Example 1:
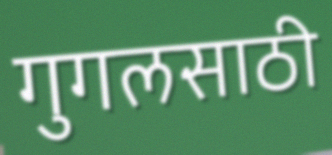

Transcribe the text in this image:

गुगलसाठी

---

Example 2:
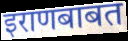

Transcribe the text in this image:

इराणबाबत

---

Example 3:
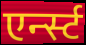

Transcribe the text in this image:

एर्न्स्ट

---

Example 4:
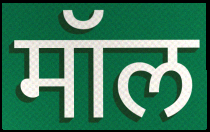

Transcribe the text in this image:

मॉल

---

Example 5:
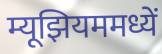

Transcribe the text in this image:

म्यूझियममध्यें